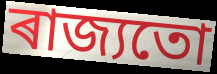
ৰাজ্যতো